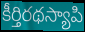
కీర్తిరథస్యాపి